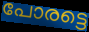
പോരട്ടെ